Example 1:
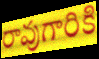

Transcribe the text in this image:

రావుగారికి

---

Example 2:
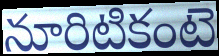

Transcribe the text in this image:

నూరిటికంటె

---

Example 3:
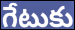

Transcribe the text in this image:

గేటుకు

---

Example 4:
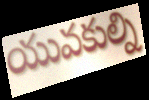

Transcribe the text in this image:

యువకుల్ని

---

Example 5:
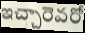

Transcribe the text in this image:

ఇచ్చారెవరో